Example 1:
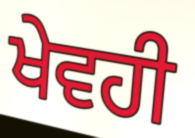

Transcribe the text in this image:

ਖੇਵਹੀ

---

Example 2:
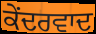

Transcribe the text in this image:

ਕੇਂਦਰਵਾਦ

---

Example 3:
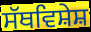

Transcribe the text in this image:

ਸੱਥਵਿਸ਼ੇਸ਼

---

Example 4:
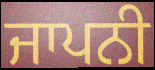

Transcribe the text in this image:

ਜਾਪਨੀ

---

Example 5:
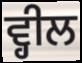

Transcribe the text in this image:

ਵ੍ਹੀਲ